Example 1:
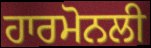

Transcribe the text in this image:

ਹਾਰਮੋਨਲੀ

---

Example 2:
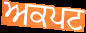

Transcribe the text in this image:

ਅਕਪਟ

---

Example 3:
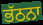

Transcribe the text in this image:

ਭੱਠਨਾ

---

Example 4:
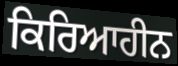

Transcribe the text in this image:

ਕਿਰਿਆਹੀਨ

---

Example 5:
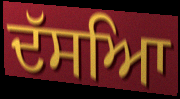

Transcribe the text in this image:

ਦੱਸਆਿ